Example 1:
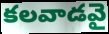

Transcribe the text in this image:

కలవాడవై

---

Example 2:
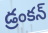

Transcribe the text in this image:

డ్రంకన్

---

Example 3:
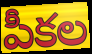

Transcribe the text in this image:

పీకల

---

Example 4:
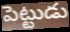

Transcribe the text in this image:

పెట్టుడు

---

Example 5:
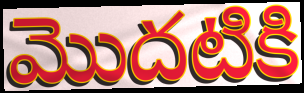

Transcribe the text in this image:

మొదటికి